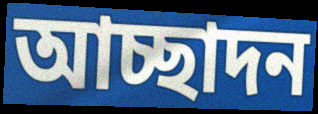
আচ্ছাদন